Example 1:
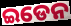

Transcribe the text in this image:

ଇଡେନ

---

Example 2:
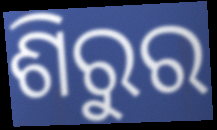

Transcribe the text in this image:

ଶିରୁର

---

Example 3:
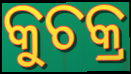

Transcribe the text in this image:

କୁଚକ୍ର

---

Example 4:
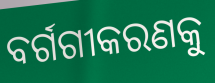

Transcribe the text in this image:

ବର୍ଗଗୀକରଣକୁ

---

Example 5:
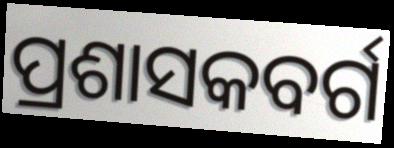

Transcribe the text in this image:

ପ୍ରଶାସକବର୍ଗ